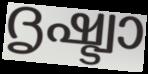
ദൃഷ്ട്വാ